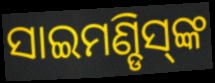
ସାଇମଣ୍ଡିସ୍‍ଙ୍କ